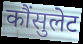
कौंसुलेट